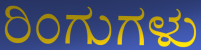
ರಿಂಗುಗಳು